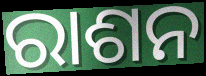
ରାଶନ